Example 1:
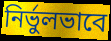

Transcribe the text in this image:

নির্ভুলভাবে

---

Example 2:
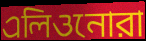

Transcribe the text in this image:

এলিওনোরা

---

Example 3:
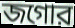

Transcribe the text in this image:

জগোর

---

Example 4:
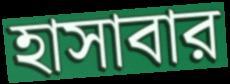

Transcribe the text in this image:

হাসাবার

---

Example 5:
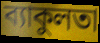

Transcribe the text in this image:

ব্যাকুলতা